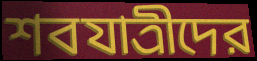
শবযাত্রীদের